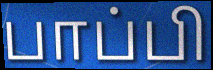
பாப்பி